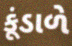
કૂંડાળે